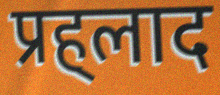
प्रह्‌लाद